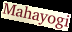
Mahayogi